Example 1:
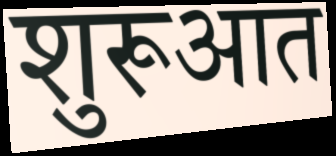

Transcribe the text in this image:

शुरूआत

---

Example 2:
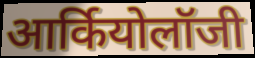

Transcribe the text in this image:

आर्कियोलॉजी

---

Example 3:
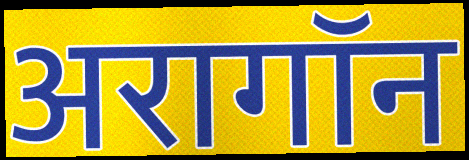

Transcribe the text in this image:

अरागॉन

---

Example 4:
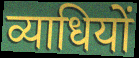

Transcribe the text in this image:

व्याधियों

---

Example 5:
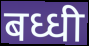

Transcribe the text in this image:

बध्धी